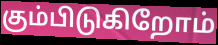
கும்பிடுகிறோம்